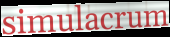
simulacrum